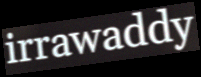
irrawaddy